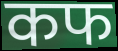
कफ